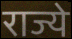
राज्ये